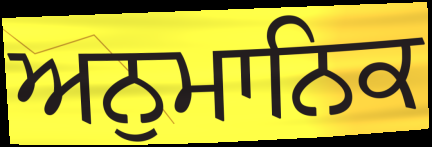
ਅਨੁਮਾਨਿਕ